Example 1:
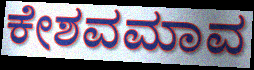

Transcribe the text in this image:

ಕೇಶವಮಾವ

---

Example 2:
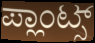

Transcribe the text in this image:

ಪ್ಲಾಂಟ್ಸ್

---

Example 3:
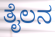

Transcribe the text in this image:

ತೈಲನ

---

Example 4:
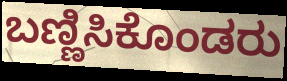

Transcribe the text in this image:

ಬಣ್ಣಿಸಿಕೊಂಡರು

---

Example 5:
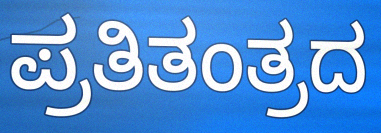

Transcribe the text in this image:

ಪ್ರತಿತಂತ್ರದ